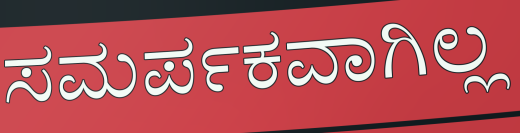
ಸಮರ್ಪಕವಾಗಿಲ್ಲ